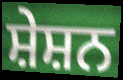
ਸ਼ੇਸ਼ਨ